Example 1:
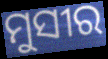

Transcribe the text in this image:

ମୁସୀର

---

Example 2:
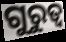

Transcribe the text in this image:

ଗୁରୁତ୍ବ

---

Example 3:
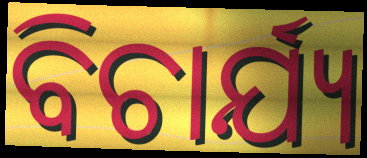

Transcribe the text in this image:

ବିଚାର୍ଯ୍ୟ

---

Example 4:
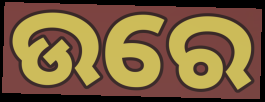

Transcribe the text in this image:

ଉରେ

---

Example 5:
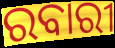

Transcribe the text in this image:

ରବାରୀ